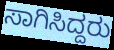
ಸಾಗಿಸಿದ್ದರು